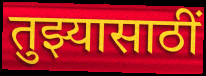
तुझ्यासाठीं